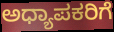
ಅಧ್ಯಾಪಕರಿಗೆ